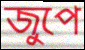
জুপে